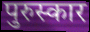
पुरुस्‍कार